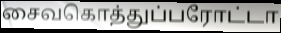
சைவகொத்துப்பரோட்டா